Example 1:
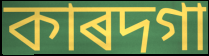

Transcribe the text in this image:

কাৰদগা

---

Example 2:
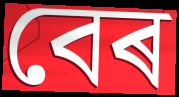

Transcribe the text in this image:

বেৰ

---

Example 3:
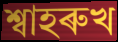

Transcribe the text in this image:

শ্বাহৰুখ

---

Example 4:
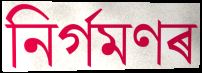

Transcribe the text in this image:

নিৰ্গমণৰ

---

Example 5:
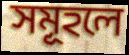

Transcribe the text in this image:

সমূহলে